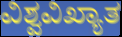
ವಿಶ್ವವಿಖ್ಯಾತ